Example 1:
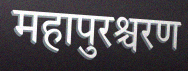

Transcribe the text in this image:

महापुरश्चरण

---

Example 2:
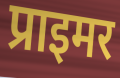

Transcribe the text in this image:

प्राइमर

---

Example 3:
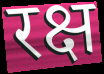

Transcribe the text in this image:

रक्ष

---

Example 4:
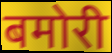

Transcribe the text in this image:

बमोरी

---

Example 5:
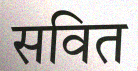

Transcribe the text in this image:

सवित